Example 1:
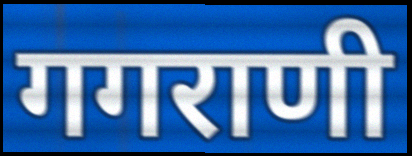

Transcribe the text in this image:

गगराणी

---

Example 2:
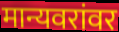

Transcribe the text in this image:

मान्यवरांवर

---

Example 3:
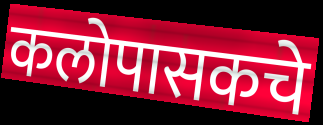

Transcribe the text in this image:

कलोपासकचे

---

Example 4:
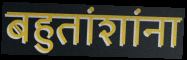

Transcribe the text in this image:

बहुतांशांना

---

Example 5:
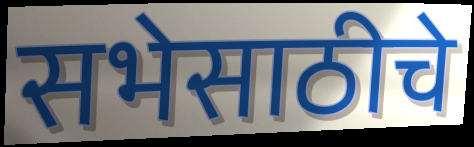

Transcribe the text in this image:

सभेसाठीचे